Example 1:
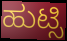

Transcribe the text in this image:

ಹುಟ್ಸಿ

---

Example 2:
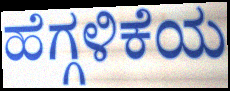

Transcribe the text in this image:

ಹೆಗ್ಗಳಿಕೆಯ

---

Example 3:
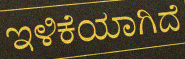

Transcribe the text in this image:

ಇಳಿಕೆಯಾಗಿದೆ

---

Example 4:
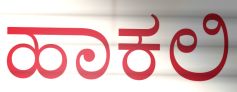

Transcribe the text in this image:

ಹಾಕಲಿ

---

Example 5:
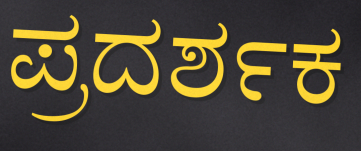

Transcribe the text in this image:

ಪ್ರದರ್ಶಕ